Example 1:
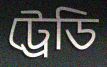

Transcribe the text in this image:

ট্রেডি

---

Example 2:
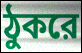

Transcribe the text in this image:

ঠুকরে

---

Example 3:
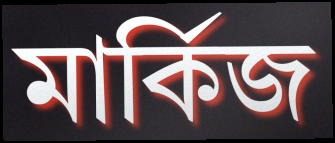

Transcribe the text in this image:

মার্কিজ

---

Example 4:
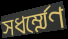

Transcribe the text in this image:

সধর্ম্মেণ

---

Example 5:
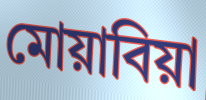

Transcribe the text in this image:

মোয়াবিয়া